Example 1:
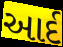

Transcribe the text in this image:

આર્દ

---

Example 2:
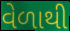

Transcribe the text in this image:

વેળાથી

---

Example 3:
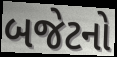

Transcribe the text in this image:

બજેટનો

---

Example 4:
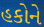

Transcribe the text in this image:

હકોને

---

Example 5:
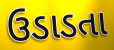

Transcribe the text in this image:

ઉડાડતા